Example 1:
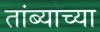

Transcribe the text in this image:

तांब्याच्या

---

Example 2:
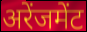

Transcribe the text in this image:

अरेंजमेंट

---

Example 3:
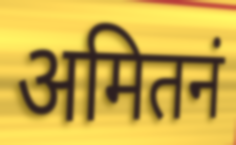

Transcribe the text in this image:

अमितनं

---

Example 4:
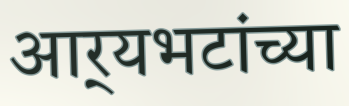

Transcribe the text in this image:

आर्यभटांच्या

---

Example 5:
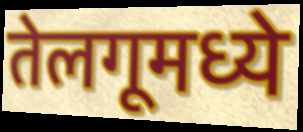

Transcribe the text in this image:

तेलगूमध्ये